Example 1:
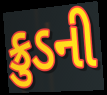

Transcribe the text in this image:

ક્રુડની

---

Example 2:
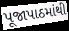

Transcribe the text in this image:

પૂજાપાઠમાંથી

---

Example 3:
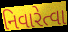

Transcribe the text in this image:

નિવારેત્વા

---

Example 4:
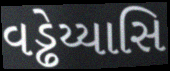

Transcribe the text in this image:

વડ્ઢેય્યાસિ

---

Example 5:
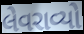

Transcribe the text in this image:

લેવરાવ્યો